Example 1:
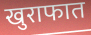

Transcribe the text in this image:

खुराफात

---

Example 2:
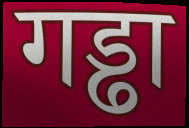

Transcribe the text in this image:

गड्ढा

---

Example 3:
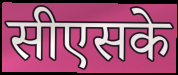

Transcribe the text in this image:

सीएसके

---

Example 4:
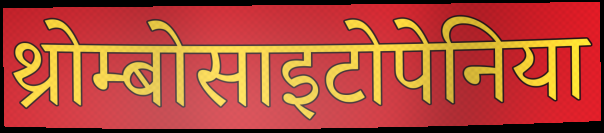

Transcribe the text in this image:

थ्रोम्बोसाइटोपेनिया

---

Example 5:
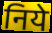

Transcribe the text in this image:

निये